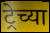
ट्रेच्या